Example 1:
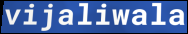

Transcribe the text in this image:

vijaliwala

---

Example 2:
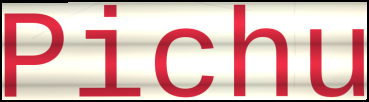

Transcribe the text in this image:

Pichu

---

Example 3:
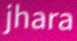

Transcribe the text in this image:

jhara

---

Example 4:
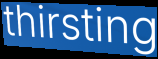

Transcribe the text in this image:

thirsting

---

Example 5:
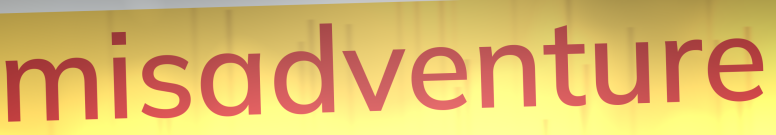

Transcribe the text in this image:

misadventure